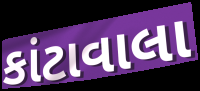
કાંટાવાલા